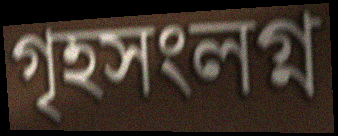
গৃহসংলগ্ন